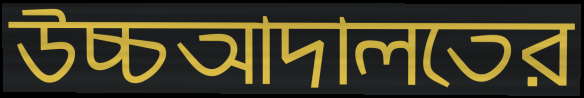
উচ্চআদালতের